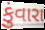
કુંવારા